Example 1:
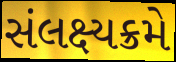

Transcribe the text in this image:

સંલક્ષ્યક્રમે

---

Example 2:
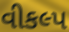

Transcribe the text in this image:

વીકલ્પ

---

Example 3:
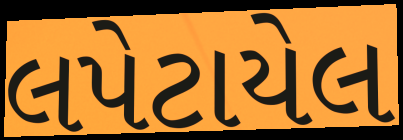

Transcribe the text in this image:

લપેટાયેલ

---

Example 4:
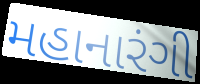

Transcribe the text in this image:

મહાનારંગી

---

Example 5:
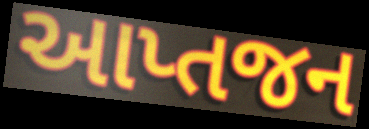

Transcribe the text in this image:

આપ્તજન